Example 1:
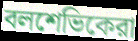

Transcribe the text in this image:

বলশেভিকেরা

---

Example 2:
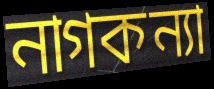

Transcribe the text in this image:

নাগকন্যা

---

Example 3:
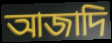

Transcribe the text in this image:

আজাদি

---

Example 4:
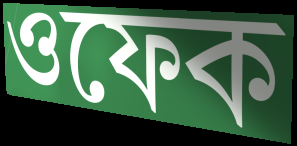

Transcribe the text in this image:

ওফেক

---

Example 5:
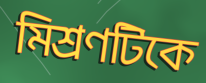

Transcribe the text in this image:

মিশ্রণটিকে